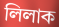
লিলাক